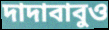
দাদাবাবুও